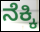
ನೆಕ್ಕಿ